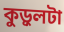
কুড়ুলটা